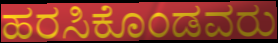
ಹರಸಿಕೊಂಡವರು